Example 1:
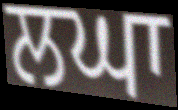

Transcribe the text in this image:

ਲਘਾ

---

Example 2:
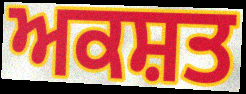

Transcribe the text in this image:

ਅਕਸ਼ਤ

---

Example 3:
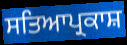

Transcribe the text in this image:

ਸਤਿਆਪ੍ਰਕਾਸ਼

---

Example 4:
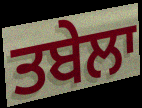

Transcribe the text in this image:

ਤਬੇਲਾ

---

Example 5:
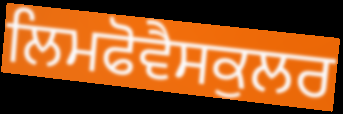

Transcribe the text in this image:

ਲਿਮਫੋਵੈਸਕੁਲਰ